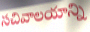
సచివాలయాన్ని